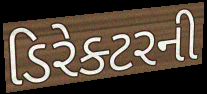
ડિરેક્ટરની